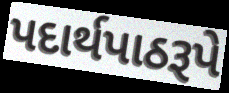
પદાર્થપાઠરૂપે